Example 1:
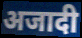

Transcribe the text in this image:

अजादी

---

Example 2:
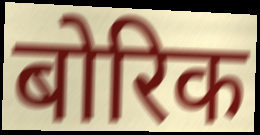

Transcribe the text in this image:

बोरिक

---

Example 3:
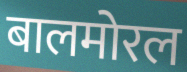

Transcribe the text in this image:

बालमोरल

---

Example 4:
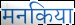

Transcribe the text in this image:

मनकिया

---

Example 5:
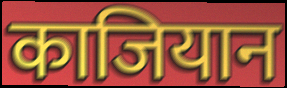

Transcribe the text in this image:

काजियान